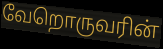
வேறொருவரின்